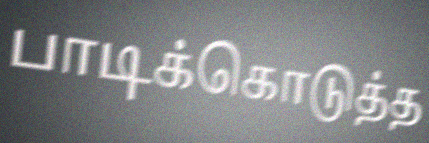
பாடிக்கொடுத்த